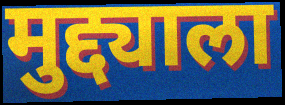
मुद्द्याला